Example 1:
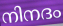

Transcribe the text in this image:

നിനദം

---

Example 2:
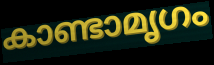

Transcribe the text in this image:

കാണ്ടാമൃഗം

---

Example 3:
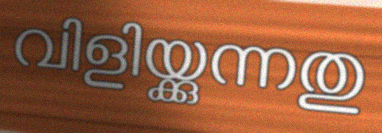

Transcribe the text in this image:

വിളിയ്ക്കുന്നതു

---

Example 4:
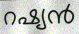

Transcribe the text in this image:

റഷ്യൻ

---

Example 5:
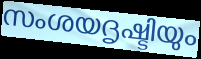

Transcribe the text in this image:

സംശയദൃഷ്ടിയും